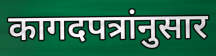
कागदपत्रांनुसार